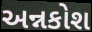
અન્નકોશ